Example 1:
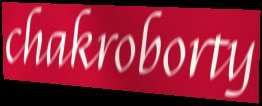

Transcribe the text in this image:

chakroborty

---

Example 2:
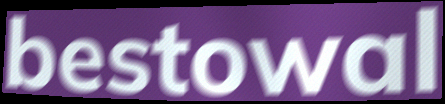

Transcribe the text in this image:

bestowal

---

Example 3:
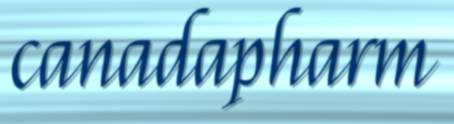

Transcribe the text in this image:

canadapharm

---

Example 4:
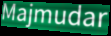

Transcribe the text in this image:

Majmudar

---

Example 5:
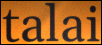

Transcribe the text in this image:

talai